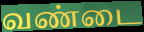
வண்டை